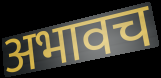
अभावच